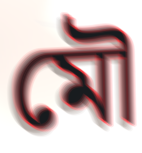
মৌ